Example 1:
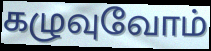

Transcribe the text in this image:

கழுவுவோம்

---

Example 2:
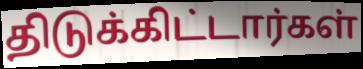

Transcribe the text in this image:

திடுக்கிட்டார்கள்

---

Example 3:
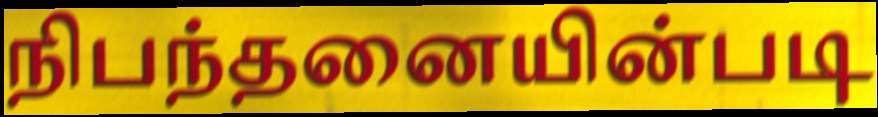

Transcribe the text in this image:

நிபந்தனையின்படி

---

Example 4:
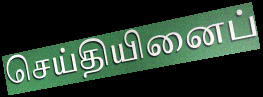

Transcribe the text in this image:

செய்தியினைப்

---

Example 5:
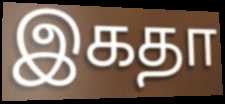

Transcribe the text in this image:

இகதா